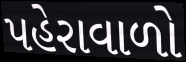
પહેરાવાળો